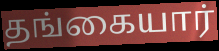
தங்கையார்